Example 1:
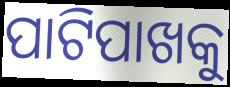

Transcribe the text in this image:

ପାଟିପାଖକୁ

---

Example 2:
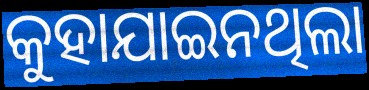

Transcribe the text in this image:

କୁହାଯାଇନଥିଲା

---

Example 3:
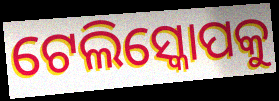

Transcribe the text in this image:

ଟେଲିସ୍କୋପକୁ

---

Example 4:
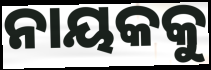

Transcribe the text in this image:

ନାୟକକୁ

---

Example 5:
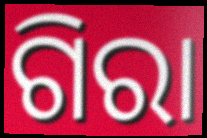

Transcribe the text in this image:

ଗିରା